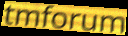
tmforum